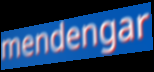
mendengar